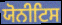
ਯੋਨੀਟਿਸ